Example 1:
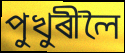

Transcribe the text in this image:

পুখুৰীলৈ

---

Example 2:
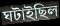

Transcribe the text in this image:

ঘটাইছিল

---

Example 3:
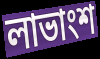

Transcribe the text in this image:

লাভাংশ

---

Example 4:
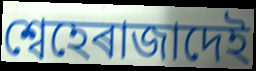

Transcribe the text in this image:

শ্বেহেৰাজাদেই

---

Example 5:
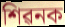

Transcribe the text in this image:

শিৱনক